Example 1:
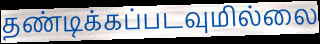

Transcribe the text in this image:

தண்டிக்கப்படவுமில்லை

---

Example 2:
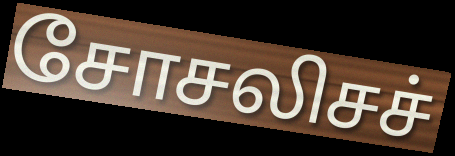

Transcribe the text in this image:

சோசலிசச்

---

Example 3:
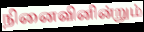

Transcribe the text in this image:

நினைவினின்றும்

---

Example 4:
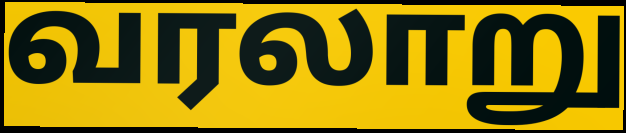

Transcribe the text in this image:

வரலாறு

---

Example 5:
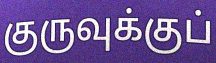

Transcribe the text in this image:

குருவுக்குப்